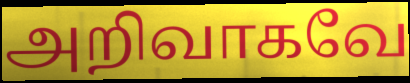
அறிவாகவே